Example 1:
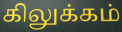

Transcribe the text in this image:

கிலுக்கம்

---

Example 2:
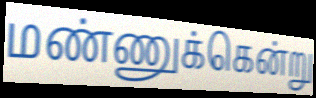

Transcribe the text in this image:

மண்ணுக்கென்று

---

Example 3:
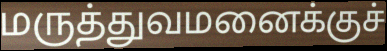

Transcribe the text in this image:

மருத்துவமனைக்குச்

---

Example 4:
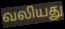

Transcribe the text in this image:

வலியது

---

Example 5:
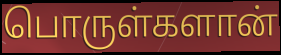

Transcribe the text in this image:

பொருள்களான்